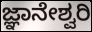
ಜ್ಞಾನೇಶ್ವರಿ